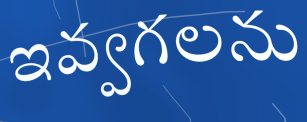
ఇవ్వగలను